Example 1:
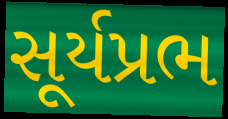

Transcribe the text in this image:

સૂર્યપ્રભ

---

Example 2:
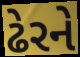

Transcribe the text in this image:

ઢેરને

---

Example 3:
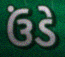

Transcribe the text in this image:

ઉંડે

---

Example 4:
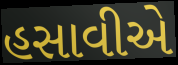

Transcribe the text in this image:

હસાવીએ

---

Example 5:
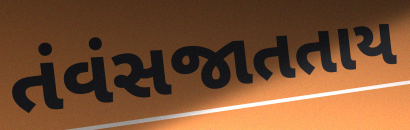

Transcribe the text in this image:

તંવંસજાતતાય